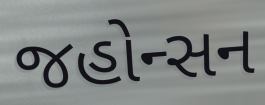
જહોન્સન